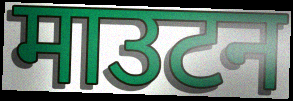
माउटन